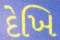
દેખિ